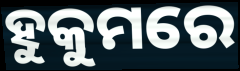
ହୁକୁମରେ